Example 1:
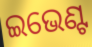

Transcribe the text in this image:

ଇଭେଣ୍ଟ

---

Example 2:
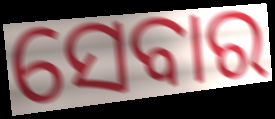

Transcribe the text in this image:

ସେବାର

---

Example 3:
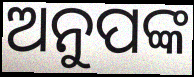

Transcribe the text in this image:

ଅନୁପଙ୍କ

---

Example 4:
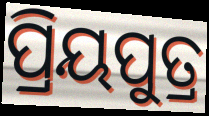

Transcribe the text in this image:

ପ୍ରିୟପୁତ୍ର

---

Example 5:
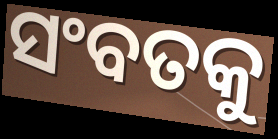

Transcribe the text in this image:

ସଂବତକୁ